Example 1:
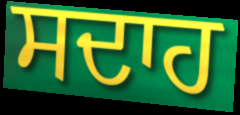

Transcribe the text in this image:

ਸਦਾਹ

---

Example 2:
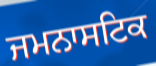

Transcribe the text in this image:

ਜਮਨਾਸਟਿਕ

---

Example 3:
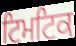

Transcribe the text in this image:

ਟਿਮਟਿਕ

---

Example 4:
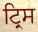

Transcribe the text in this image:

ਟ੍ਰਿਸ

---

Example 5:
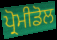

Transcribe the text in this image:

ਪ੍ਰੋਮੀਡੋਲ